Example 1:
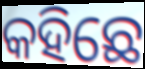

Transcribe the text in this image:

କହିଛେ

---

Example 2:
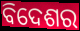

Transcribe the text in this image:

ବିଦେଶର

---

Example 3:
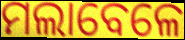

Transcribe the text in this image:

ମଲାବେଳେ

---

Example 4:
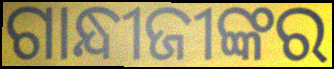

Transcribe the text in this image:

ଗାନ୍ଧୀଜୀଙ୍କର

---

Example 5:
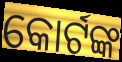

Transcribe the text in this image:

କୋର୍ଟଙ୍କ